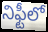
నిఫ్టీలో